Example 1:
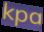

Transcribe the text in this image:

kpa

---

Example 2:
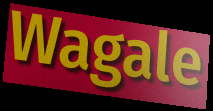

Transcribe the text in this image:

Wagale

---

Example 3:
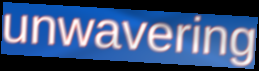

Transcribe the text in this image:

unwavering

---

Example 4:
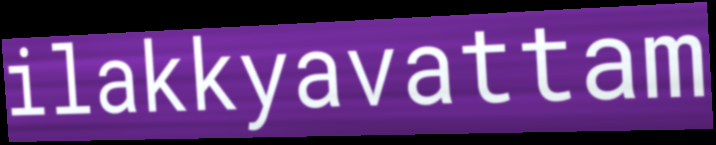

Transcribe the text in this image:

ilakkyavattam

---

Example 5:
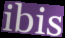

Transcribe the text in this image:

ibis